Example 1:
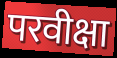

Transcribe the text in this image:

परवीक्षा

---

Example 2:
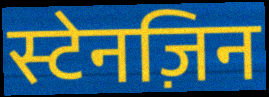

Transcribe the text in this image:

स्टेनज़िन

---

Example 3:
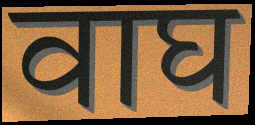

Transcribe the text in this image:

वाघ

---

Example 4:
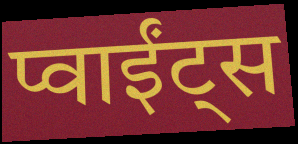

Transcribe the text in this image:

प्वाईंट्स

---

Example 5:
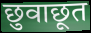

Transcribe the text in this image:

छुवाछूत